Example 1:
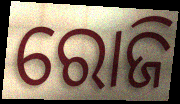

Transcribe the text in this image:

ରୋଜି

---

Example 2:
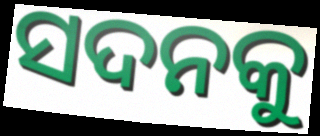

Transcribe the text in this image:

ସଦନକୁ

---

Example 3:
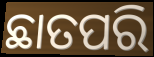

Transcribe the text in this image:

ଛାତପରି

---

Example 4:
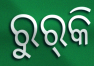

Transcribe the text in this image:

ରୁର୍‍କି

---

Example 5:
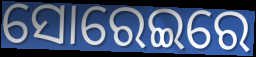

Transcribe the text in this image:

ସୋରେଇରେ